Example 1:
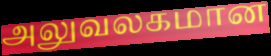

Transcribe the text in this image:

அலுவலகமான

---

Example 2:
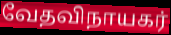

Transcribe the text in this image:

வேதவிநாயகர்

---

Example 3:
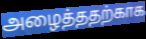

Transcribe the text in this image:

அழைத்ததற்காக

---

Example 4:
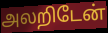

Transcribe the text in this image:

அலறிடேன்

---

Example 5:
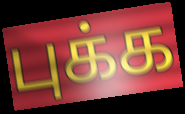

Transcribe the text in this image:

புக்க